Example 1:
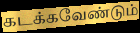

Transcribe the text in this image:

கடக்கவேண்டும்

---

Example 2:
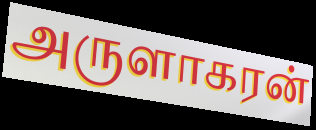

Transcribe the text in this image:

அருளாகரன்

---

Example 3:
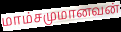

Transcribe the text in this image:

மாம்சமுமானவன்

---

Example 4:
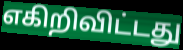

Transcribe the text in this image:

எகிறிவிட்டது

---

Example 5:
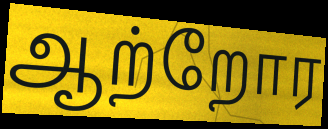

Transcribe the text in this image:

ஆற்றோர